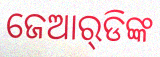
ଜେଆର୍‌ଡିଙ୍କ